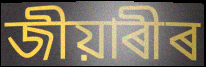
জীয়াৰীৰ